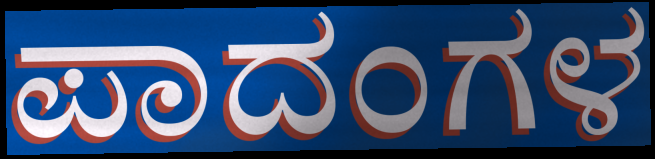
ಪಾದಂಗಳ